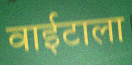
वाईटाला